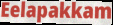
Eelapakkam